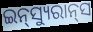
ଇନ୍‌ସ୍ୟୁରାନ୍‌ସ